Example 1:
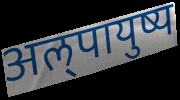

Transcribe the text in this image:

अल्पायुष्य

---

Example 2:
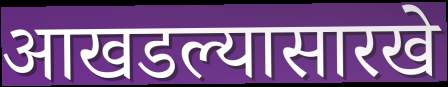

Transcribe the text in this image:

आखडल्यासारखे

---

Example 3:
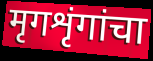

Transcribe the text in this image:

मृगशृंगांचा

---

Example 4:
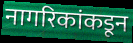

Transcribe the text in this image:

नागरिकांकडून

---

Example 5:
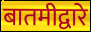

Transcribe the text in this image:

बातमीद्वारे